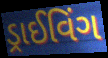
ડ્રાઈવિંગ